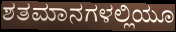
ಶತಮಾನಗಳಲ್ಲಿಯೂ